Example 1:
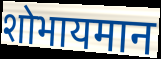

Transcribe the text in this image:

शोभायमान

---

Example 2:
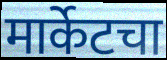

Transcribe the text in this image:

मार्केटचा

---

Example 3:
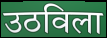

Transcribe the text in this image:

उठविला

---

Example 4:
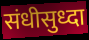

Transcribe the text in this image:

संधीसुध्दा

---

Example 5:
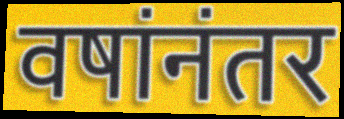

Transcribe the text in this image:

वषांनंतर